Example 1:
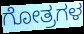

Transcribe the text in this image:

ಗೋತ್ರಗಳ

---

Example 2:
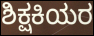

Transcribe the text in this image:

ಶಿಕ್ಷಕಿಯರ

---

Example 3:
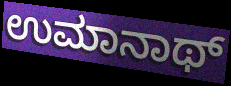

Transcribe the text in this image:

ಉಮಾನಾಥ್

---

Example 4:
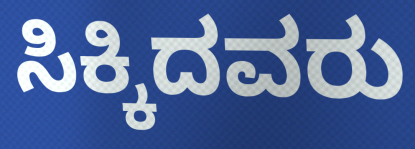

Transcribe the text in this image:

ಸಿಕ್ಕಿದವರು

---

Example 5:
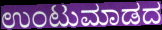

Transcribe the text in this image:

ಉಂಟುಮಾಡದ